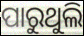
ପାରୁଥୁଲି